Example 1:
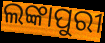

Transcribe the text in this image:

ଲଙ୍କାପୁରୀ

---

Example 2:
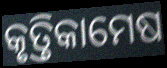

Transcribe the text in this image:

କୃତ୍ତିକାମେଷ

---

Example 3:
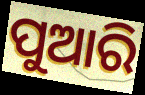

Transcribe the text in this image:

ପୁଆରି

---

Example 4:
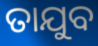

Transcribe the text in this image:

ତାଯୁବ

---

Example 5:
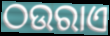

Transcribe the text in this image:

ଠଉରାଏ